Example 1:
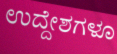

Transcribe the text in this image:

ಉದ್ದೇಶಗಳೂ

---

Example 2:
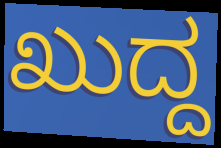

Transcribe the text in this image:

ಖುದ್ದ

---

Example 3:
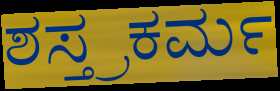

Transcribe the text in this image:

ಶಸ್ತ್ರಕರ್ಮ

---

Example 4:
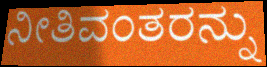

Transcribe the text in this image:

ನೀತಿವಂತರನ್ನು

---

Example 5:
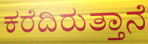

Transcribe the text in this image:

ಕರೆದಿರುತ್ತಾನೆ